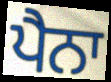
ਪੈਨਾ